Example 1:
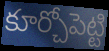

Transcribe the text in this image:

కూర్చోపెట్టి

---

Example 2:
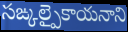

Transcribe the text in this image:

సఙ్కల్పైకాయనాని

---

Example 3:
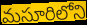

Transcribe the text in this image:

మసూరిలోని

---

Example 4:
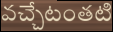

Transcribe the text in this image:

వచ్చేటంతటి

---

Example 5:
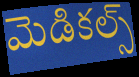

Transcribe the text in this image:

మెడికల్స్